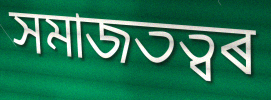
সমাজতত্বৰ